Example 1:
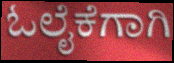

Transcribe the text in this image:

ಓಲೈಕೆಗಾಗಿ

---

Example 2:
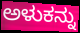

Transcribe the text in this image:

ಅಳುಕನ್ನು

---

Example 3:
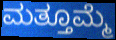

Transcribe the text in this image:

ಮತ್ತೂಮ್ಮೆ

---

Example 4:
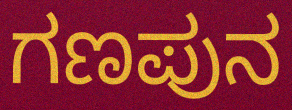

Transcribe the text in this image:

ಗಣಪುನ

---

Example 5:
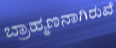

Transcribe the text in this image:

ಬ್ರಾಹ್ಮಣನಾಗಿರುವೆ